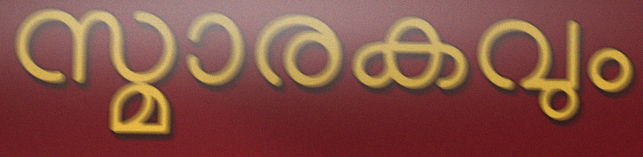
സ്മാരകവും